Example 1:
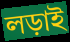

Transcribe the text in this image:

লড়াই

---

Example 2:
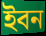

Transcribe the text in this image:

ইবন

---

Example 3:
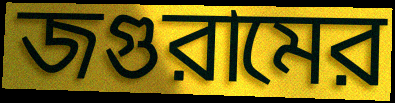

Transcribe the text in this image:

জগুরামের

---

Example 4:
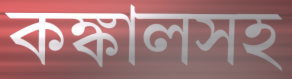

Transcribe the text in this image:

কঙ্কালসহ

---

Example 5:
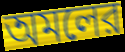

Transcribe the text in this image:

অমলের